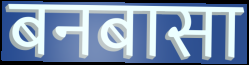
बनबासा